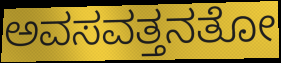
ಅವಸವತ್ತನತೋ